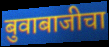
बुवाबाजीचा